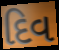
દિવ